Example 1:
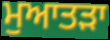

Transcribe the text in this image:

ਮੁਆਤੜਾ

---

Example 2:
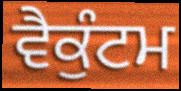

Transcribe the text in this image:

ਵੈਕੁੰਟਮ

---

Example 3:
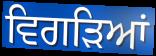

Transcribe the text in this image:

ਵਿਗੜਿਆਂ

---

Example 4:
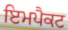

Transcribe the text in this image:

ਇਮਪੈਕਟ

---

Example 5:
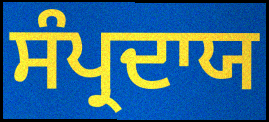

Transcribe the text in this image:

ਸੰਪ੍ਰਦਾਯ